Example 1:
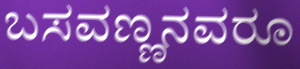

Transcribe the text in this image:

ಬಸವಣ್ಣನವರೂ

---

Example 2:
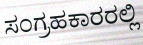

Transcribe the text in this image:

ಸಂಗ್ರಹಕಾರರಲ್ಲಿ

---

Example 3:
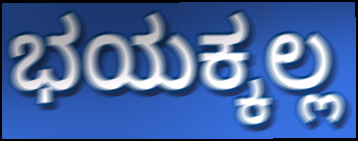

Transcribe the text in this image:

ಭಯಕ್ಕಲ್ಲ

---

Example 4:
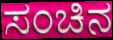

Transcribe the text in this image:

ಸಂಚಿನ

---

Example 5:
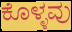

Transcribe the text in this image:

ಕೊಳ್ಳವು